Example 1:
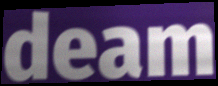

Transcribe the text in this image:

deam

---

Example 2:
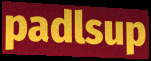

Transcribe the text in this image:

padlsup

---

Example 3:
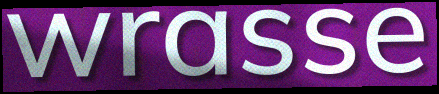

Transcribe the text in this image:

wrasse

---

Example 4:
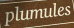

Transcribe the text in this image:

plumules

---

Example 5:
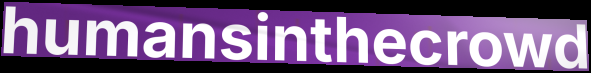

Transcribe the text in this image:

humansinthecrowd